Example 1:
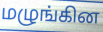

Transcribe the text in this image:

மழுங்கின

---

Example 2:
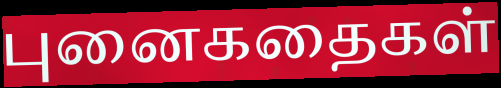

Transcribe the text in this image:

புனைகதைகள்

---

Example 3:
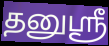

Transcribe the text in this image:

தனுஸ்ரீ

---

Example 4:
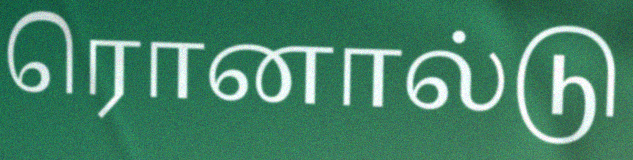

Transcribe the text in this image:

ரொனால்டு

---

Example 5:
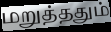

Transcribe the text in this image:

மறுத்ததும்